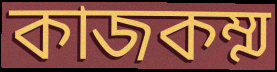
কাজকম্ম